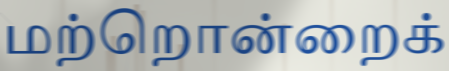
மற்றொன்றைக்